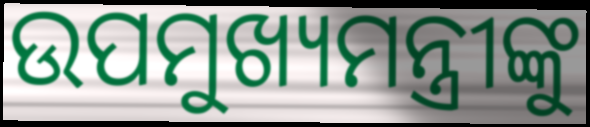
ଉପମୁଖ୍ୟମନ୍ତ୍ରୀଙ୍କୁ